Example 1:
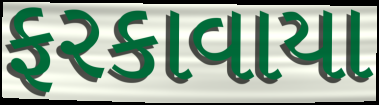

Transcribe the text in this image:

ફરકાવાયા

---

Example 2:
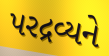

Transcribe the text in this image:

પરદ્રવ્યને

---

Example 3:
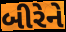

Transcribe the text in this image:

બીરેને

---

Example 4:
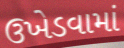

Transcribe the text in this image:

ઉખેડવામાં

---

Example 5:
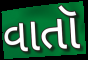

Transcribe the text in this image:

વાતૉ